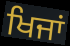
ਖਿਜਾਂ